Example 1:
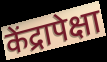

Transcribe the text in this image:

केंद्रापेक्षा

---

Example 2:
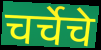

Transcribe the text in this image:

चर्चेचे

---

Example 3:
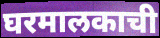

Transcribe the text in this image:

घरमालकाची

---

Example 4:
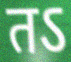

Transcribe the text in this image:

तऽ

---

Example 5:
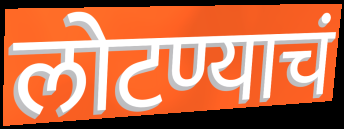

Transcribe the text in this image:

लोटण्याचं